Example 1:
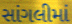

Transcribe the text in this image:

સાંગલીમાં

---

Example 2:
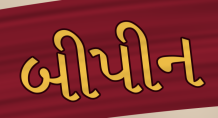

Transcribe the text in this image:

બીપીન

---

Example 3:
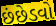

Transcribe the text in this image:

છંછેડવો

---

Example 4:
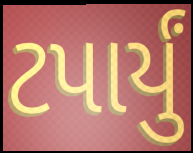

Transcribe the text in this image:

ટપાર્યું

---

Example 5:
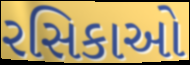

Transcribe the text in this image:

રસિકાઓ